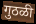
गुठळी